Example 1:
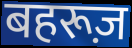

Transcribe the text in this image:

बहरूज़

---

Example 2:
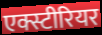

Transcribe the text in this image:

एक्स्टीरियर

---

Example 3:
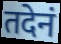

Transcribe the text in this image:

तदेनं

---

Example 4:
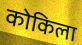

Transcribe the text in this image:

कोकिला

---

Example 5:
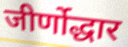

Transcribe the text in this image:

जीर्णोद्धार